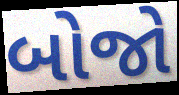
બોજો